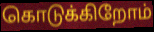
கொடுக்கிறோம்